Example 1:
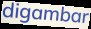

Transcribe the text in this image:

digambar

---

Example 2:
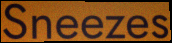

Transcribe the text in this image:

Sneezes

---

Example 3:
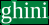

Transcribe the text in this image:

ghini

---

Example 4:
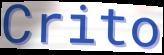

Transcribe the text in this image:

Crito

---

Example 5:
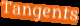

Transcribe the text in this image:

Tangents